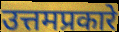
उत्तमप्रकारे